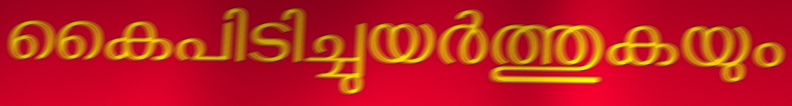
കൈപിടിച്ചുയർത്തുകയും